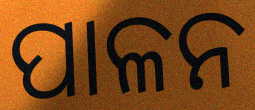
ପାଳନ